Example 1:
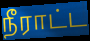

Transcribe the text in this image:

நீராட்ட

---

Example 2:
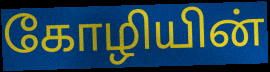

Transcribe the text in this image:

கோழியின்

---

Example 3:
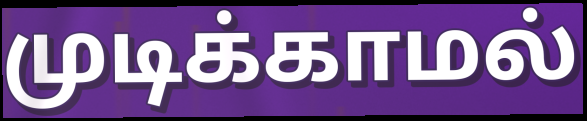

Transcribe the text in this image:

முடிக்காமல்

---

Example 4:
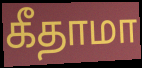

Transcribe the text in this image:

கீதாமா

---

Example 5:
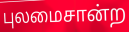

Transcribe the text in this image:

புலமைசான்ற